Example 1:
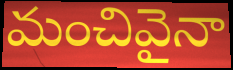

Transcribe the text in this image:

మంచివైనా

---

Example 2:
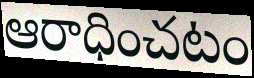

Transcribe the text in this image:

ఆరాధించటం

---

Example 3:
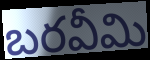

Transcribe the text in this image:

బరవీమి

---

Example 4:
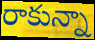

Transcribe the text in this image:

రాకున్నా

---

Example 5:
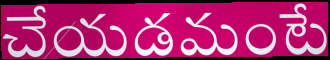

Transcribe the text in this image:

చేయడమంటే